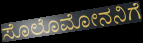
ಸೊಲೊಮೋನನಿಗೆ